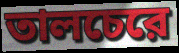
তালচেরে